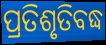
ପ୍ରତିଶୃତିବଦ୍ଧ